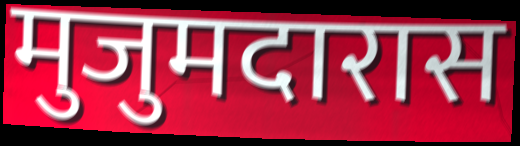
मुजुमदारास